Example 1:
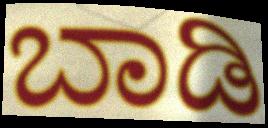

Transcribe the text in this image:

ಬಾಡಿ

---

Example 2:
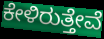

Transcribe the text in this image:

ಕೇಳಿರುತ್ತೇವೆ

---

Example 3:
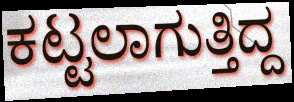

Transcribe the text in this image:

ಕಟ್ಟಲಾಗುತ್ತಿದ್ದ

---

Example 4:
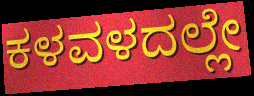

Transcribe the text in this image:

ಕಳವಳದಲ್ಲೇ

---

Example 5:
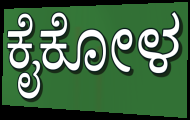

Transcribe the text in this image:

ಕೈಕೋಳ